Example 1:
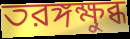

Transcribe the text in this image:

তরঙ্গক্ষুব্ধ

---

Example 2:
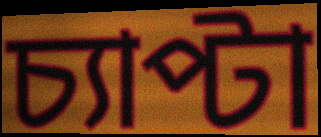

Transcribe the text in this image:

চ্যাপ্টা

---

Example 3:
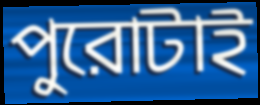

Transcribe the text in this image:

পুরোটাই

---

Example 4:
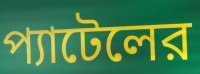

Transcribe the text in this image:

প্যাটেলের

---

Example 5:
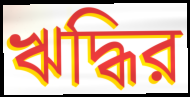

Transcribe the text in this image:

ঋদ্ধির